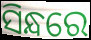
ସିନ୍ଧରେ